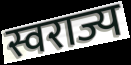
स्वराज्य